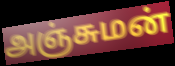
அஞ்சுமன்